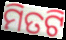
ମିତଟି